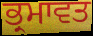
ਭ੍ਰਮਾਵਤ